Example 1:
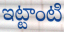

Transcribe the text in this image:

ఇట్టాంటి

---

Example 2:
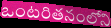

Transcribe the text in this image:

ఒంటరితనంలోని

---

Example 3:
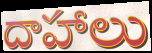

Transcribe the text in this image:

దాహాలు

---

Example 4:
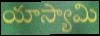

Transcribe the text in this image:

యాస్యామి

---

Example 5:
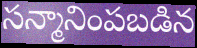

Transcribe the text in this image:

సన్మానింపబడిన